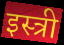
इस्त्री